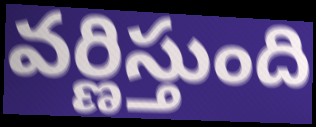
వర్ణిస్తుంది